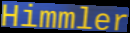
Himmler